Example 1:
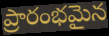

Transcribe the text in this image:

ప్రారంభమైన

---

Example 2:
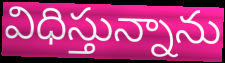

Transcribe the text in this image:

విధిస్తున్నాను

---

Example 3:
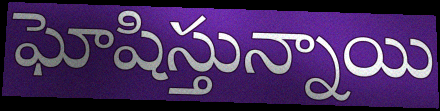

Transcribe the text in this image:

ఘోషిస్తున్నాయి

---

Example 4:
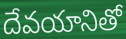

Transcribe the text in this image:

దేవయానితో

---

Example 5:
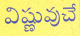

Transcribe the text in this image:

విష్ణువుచే